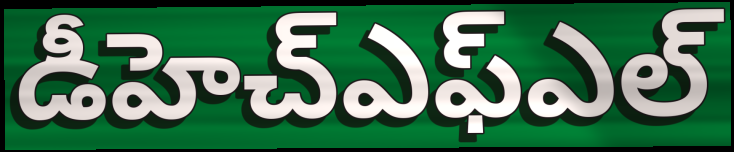
డీహెచ్ఎఫ్ఎల్